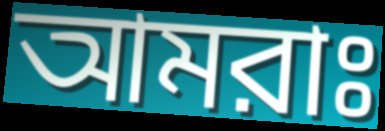
আমরাঃ